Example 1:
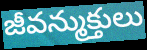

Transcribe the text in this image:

జీవన్ముక్తులు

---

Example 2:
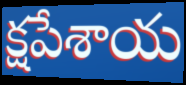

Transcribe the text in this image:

క్షపేశాయ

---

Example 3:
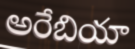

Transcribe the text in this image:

అరేబియా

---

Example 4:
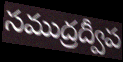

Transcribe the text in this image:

సముద్రద్వీప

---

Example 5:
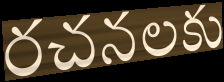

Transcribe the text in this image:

రచనలకు